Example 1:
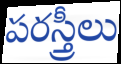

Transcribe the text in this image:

పరస్త్రీలు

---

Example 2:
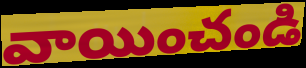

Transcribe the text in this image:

వాయించండి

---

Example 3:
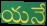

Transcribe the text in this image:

యనే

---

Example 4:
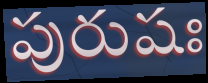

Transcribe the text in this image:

పురుషః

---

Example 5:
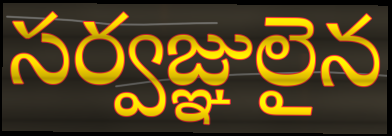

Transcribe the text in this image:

సర్వజ్ఞులైన